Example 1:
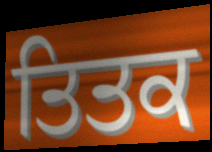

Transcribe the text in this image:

ਤਿਤਕ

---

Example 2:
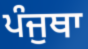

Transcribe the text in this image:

ਪੰਜੁਥਾ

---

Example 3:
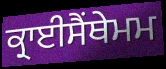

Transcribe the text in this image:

ਕ੍ਰਾਈਸੈਂਥੇਮਮ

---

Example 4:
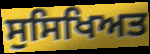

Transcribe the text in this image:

ਸੁਸਿਖਿਅਤ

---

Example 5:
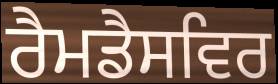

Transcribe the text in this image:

ਰੈਮਡੈਸਵਿਰ